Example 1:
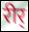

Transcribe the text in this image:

रीर्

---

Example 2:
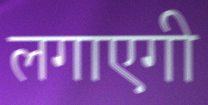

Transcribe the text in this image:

लगाएगी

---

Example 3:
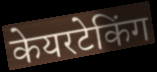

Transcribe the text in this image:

केयरटेकिंग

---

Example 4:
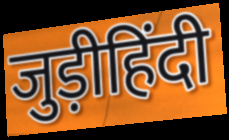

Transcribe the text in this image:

जुड़ीहिंदी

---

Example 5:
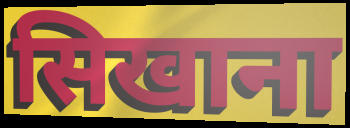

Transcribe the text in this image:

सिखाना